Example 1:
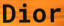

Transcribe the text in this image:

Dior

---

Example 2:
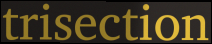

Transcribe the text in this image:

trisection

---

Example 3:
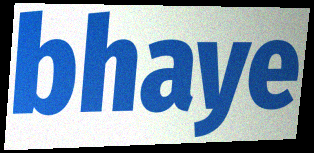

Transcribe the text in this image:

bhaye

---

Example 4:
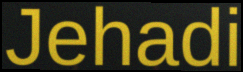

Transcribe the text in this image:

Jehadi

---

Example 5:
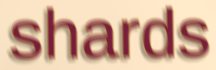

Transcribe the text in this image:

shards